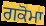
ਗਕੋਮਾ